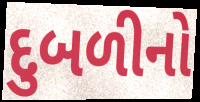
દુબળીનો